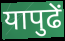
यापुढें